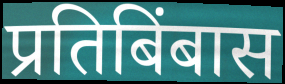
प्रतिबिंबास